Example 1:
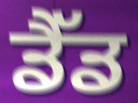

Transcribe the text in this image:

ਡੈੱਡ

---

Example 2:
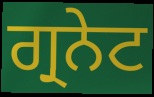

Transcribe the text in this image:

ਗ੍ਰਨੇਟ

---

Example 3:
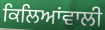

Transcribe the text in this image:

ਕਿਲਿਆਂਵਾਲੀ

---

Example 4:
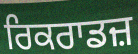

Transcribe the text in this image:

ਰਿਕਰਾਡਜ਼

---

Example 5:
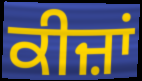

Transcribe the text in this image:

ਕੀਜ਼ਾਂ